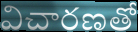
విచారణతో